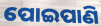
ପୋଇପାଣି